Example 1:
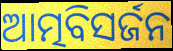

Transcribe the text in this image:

ଆତ୍ମବିସର୍ଜନ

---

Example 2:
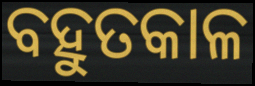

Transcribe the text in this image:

ବହୁତକାଳ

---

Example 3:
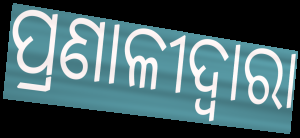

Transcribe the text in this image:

ପ୍ରଣାଳୀଦ୍ୱାରା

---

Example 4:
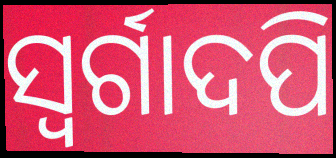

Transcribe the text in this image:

ସ୍ୱର୍ଗାଦପି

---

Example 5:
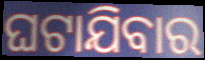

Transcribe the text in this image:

ଘଟାଯିବାର